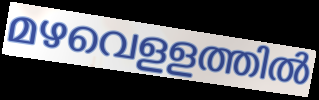
മഴവെളളത്തിൽ